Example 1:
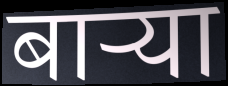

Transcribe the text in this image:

बाऱ्या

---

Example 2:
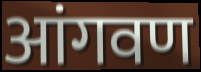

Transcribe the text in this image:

आंगवण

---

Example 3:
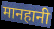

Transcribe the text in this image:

मानहानी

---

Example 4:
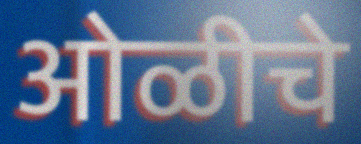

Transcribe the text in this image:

ओळीचे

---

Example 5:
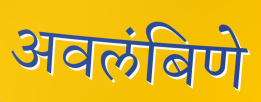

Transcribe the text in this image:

अवलंबिणे